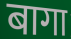
बागा